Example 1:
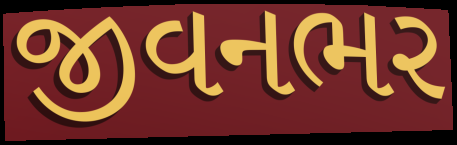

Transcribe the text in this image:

જીવનભર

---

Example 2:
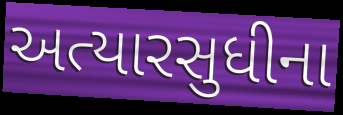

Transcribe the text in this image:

અત્યારસુધીના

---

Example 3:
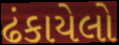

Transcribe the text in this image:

ઢંકાયેલો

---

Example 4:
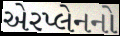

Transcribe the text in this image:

એરપ્લેનનો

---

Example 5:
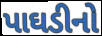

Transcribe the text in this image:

પાઘડીનો